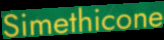
Simethicone